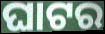
ଘାଟର